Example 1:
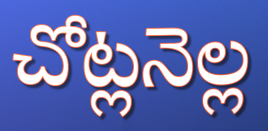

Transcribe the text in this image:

చోట్లనెల్ల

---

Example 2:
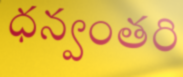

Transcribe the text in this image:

ధన్వంతరి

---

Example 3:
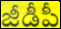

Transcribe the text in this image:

జీడీపీ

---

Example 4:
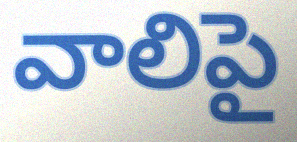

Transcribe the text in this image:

వాలిపై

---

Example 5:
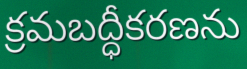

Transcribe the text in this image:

క్రమబద్ధీకరణను